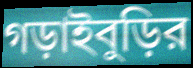
গড়াইবুড়ির